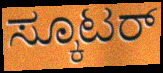
ಸ್ಕೂಟರ್